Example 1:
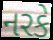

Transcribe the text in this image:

નરકે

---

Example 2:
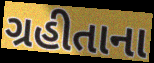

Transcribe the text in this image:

ગ્રહીતાના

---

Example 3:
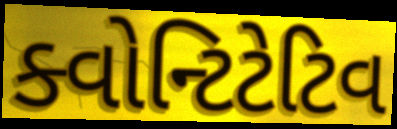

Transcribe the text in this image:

ક્વોન્ટિટેટિવ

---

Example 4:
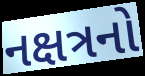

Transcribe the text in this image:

નક્ષત્રનો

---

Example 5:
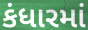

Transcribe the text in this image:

કંધારમાં